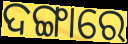
ଦଙ୍ଗାରେ